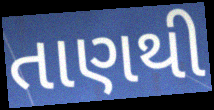
તાણથી